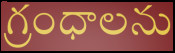
గ్రంధాలను